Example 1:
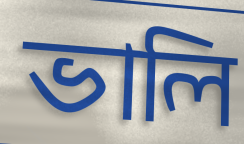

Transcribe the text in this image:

ভালি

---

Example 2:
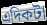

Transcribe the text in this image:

এদিকটা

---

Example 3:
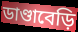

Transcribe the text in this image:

ডাণ্ডাবেড়ি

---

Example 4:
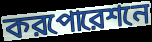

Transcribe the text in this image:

করপোরেশনে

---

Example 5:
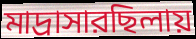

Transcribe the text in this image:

মাদ্রাসারছিলায়